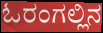
ಓರಂಗಲ್ಲಿನ